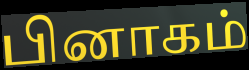
பினாகம்